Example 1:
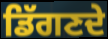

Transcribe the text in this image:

ਡਿੱਗਣਦੇ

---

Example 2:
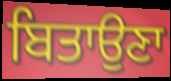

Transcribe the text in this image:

ਬਿਤਾਉਣਾ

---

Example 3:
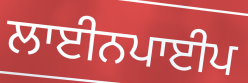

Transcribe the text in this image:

ਲਾਈਨਪਾਈਪ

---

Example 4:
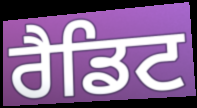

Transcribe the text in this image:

ਰੈਡਿਟ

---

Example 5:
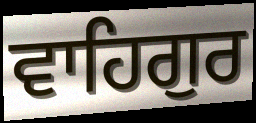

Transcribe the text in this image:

ਵਾਹਿਗੁਰ